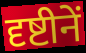
दृष्टीनें